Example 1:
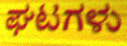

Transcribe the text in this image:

ಘಟಗಳು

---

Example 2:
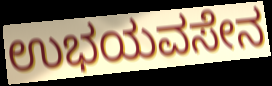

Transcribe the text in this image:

ಉಭಯವಸೇನ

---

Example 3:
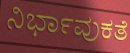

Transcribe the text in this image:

ನಿರ್ಭಾವುಕತೆ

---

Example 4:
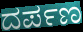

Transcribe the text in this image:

ದರ್ಪಣ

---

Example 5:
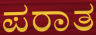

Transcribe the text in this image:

ಪರಾತ